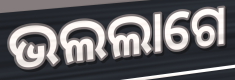
ଭଲଲାଗେ